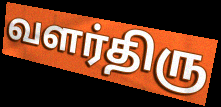
வளர்திரு